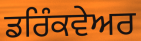
ਡਰਿੰਕਵੇਅਰ